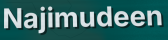
Najimudeen